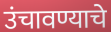
उंचावण्याचे